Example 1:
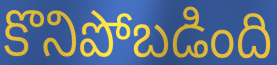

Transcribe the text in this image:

కొనిపోబడింది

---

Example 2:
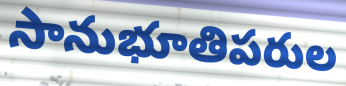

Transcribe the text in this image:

సానుభూతిపరుల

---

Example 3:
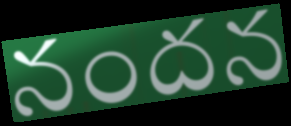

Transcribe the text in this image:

నందన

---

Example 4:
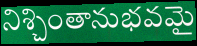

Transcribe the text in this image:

నిశ్చింతానుభవమై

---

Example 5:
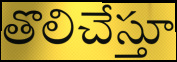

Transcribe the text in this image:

తొలిచేస్తూ